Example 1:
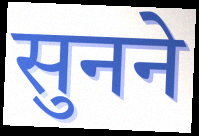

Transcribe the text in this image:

सुनने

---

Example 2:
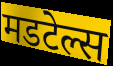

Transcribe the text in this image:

मडटेल्स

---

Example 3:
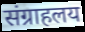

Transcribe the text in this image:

संग्राहलय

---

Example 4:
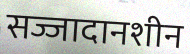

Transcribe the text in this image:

सज्जादानशीन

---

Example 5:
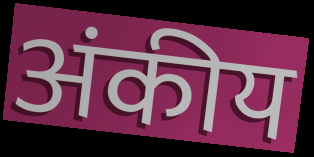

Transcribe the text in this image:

अंकीय